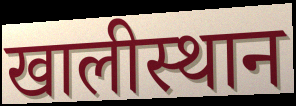
खालीस्थान